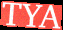
TYA